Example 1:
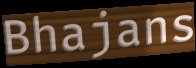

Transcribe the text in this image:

Bhajans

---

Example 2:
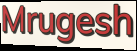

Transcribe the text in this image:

Mrugesh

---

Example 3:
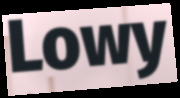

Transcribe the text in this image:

Lowy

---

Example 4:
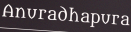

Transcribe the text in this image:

Anuradhapura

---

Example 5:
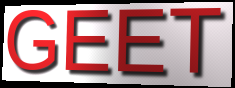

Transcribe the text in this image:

GEET